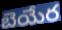
బెయేర